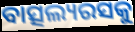
ବାତ୍ସଲ୍ୟରସକୁ